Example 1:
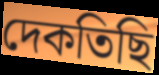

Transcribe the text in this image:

দেকতিছি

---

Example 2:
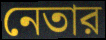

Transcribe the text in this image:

নেতার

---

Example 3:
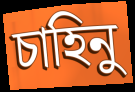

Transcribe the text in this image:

চাহিনু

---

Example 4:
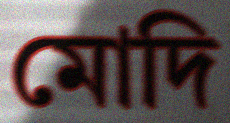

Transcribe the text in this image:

মোদি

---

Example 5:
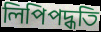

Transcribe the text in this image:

লিপিপদ্ধতি